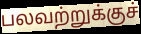
பலவற்றுக்குச்